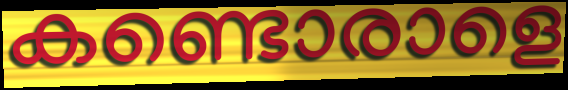
കണ്ടൊരാളെ